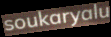
soukaryalu